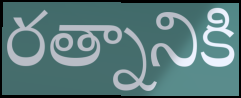
రత్నానికి